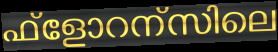
ഫ്ളോറന്സിലെ